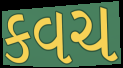
કવચ